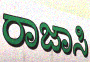
ರಾಜಾಸಿ